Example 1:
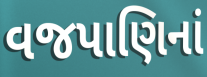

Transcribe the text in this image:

વજપાણિનાં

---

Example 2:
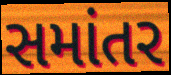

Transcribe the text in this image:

સમાંતર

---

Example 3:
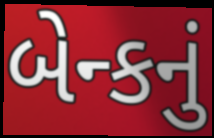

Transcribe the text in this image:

બેન્કનું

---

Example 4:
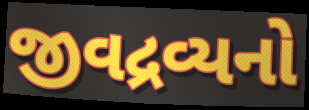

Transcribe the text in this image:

જીવદ્રવ્યનો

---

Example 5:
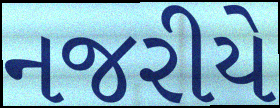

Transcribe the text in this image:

નજરીયે